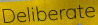
Deliberate